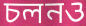
চলনও